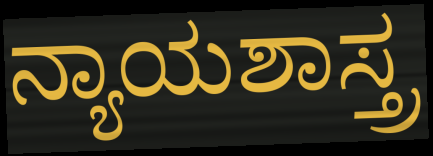
ನ್ಯಾಯಶಾಸ್ತ್ರ